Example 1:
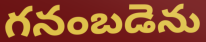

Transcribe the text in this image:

గనంబడెను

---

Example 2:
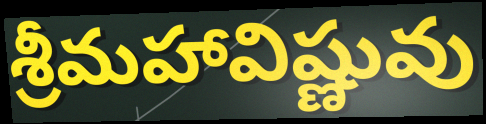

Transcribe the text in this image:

శ్రీమహావిష్ణువు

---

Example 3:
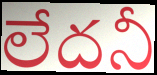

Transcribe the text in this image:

లేదనీ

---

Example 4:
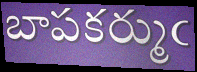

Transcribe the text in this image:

బాపకర్ముఁ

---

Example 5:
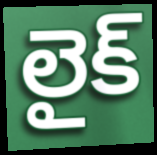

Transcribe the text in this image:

లైక్